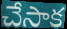
చేసాక